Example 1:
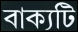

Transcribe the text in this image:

বাক্যটি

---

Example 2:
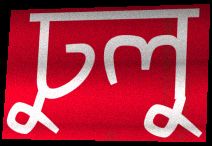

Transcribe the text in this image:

ঢুলু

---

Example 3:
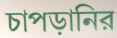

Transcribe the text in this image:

চাপড়ানির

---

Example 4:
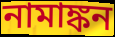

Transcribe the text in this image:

নামাঙ্কন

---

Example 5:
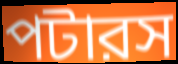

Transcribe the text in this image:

পটারস